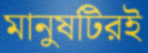
মানুষটিরই